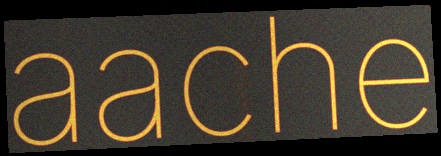
aache